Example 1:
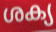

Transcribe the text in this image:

ശക്യ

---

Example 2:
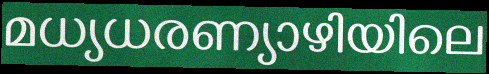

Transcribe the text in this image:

മധ്യധരണ്യാഴിയിലെ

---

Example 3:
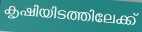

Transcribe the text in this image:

കൃഷിയിടത്തിലേക്ക്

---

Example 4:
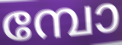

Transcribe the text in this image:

മ്പോ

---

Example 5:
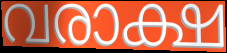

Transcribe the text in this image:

വരാക്ഷ